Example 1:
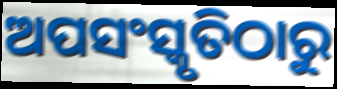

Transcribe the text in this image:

ଅପସଂସ୍କୃତିଠାରୁ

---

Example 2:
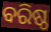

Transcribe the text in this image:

ବରିଷ୍ଠ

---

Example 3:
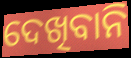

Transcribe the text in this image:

ଦେଖିବାନି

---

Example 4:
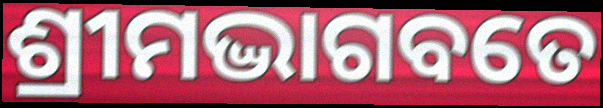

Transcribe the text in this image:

ଶ୍ରୀମଦ୍ଭାଗବତେ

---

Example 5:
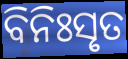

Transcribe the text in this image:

ବିନିଃସୃତ